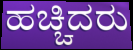
ಹಚ್ಚಿದರು